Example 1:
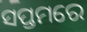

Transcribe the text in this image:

ସପ୍ତମରେ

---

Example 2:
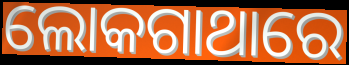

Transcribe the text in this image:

ଲୋକଗାଥାରେ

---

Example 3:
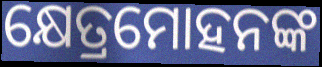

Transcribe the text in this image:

କ୍ଷେତ୍ରମୋହନଙ୍କ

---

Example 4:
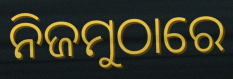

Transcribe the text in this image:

ନିଜମୁଠାରେ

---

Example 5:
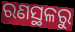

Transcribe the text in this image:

ରଣସ୍ଥଳରୁ